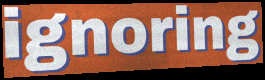
ignoring